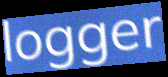
logger